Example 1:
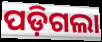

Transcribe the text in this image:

ପଡ଼ିଗଲା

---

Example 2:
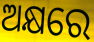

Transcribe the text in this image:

ଅକ୍ଷରେ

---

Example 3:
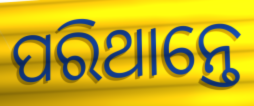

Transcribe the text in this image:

ପରିଥାନ୍ତେ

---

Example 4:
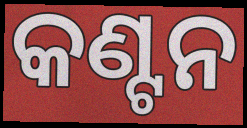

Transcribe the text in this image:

କଣ୍ଟନ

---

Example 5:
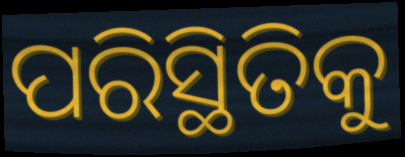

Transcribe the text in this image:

ପରିସ୍ଥିତିକୁ